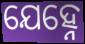
ଯେହ୍ନେ